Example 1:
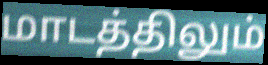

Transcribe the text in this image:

மாடத்திலும்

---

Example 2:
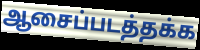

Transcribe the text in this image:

ஆசைப்படத்தக்க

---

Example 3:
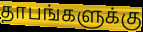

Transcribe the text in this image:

தாபங்களுக்கு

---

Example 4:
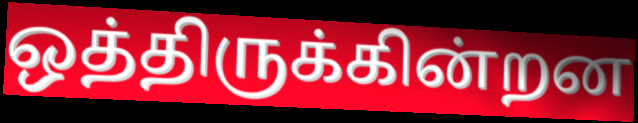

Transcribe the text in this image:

ஒத்திருக்கின்றன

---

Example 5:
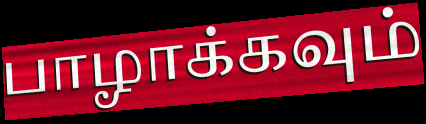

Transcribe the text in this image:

பாழாக்கவும்